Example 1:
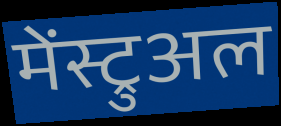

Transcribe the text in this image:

मेंस्ट्रुअल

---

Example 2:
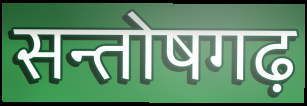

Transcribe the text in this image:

सन्तोषगढ़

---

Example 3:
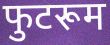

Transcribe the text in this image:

फुटरूम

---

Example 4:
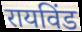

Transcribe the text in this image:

रायविंड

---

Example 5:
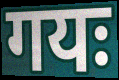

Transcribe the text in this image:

गयः